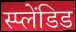
स्प्लेंडिड